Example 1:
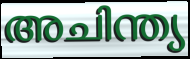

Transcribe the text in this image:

അചിന്ത്യ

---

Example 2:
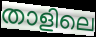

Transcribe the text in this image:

താളിലെ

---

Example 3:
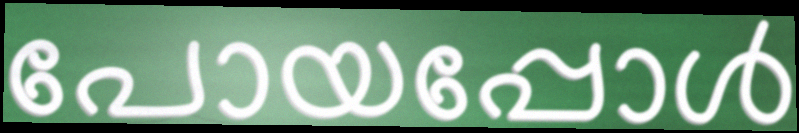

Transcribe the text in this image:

പോയപ്പോൾ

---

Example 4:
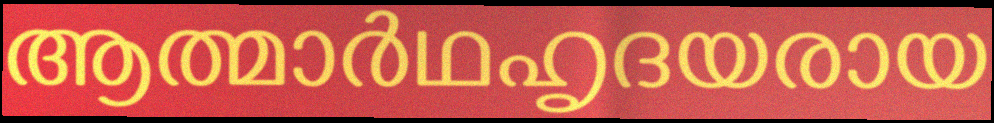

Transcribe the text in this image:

ആത്മാർഥഹൃദയരായ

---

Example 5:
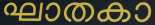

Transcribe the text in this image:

ഘാതകാ